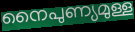
നൈപുണ്യമുള്ള